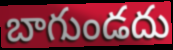
బాగుండదు